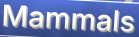
Mammals